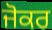
ਜੋਕਰ